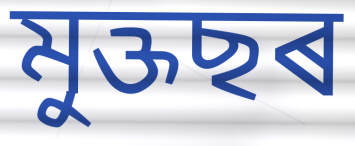
মুক্তছৰ